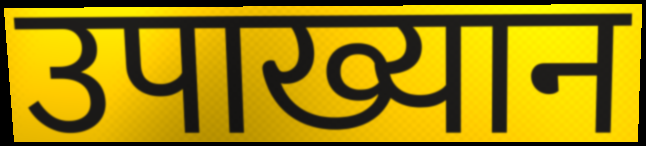
उपाख्यान